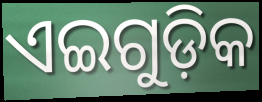
ଏଇଗୁଡ଼ିକ